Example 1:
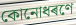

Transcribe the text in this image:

কোনোধৰণে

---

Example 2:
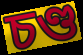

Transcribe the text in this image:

চণ্ড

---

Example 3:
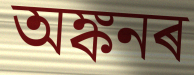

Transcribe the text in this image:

অঙ্কনৰ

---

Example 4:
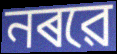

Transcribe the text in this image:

নৰৱে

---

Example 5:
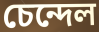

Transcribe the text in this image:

চেন্দেল